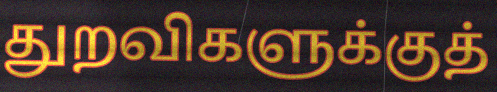
துறவிகளுக்குத்